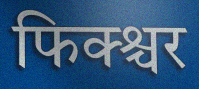
फिक्श्चर